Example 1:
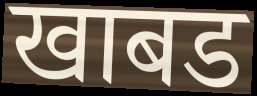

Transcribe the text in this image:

खाबड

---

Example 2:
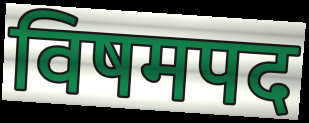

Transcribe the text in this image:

विषमपद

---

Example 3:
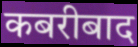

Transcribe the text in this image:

कबरीबाद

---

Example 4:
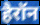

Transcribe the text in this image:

हैरॉन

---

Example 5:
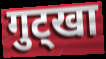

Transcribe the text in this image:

गुट्खा